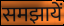
समझायें